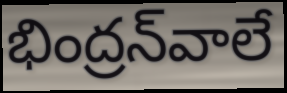
భింద్రన్‌వాలే